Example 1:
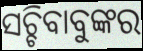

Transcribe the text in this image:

ସଚ୍ଚିବାବୁଙ୍କର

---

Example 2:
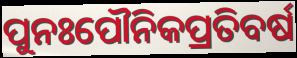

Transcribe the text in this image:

ପୁନଃପୌନିକପ୍ରତିବର୍ଷ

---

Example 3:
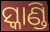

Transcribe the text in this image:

ସ୍କାଣ୍ଡି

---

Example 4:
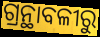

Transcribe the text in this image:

ଗ୍ରନ୍ଥାବଳୀରୁ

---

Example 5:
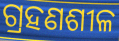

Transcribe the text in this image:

ଗ୍ରହଣଶୀଳ